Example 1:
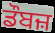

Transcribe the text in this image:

ਡੌਬਜ਼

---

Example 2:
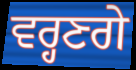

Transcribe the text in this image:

ਵਰ੍ਹਣਗੇ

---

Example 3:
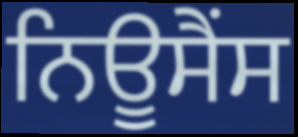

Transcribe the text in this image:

ਨਿਊਸੈਂਸ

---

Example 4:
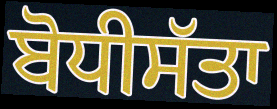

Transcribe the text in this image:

ਬੋਧੀਸੱਤਾ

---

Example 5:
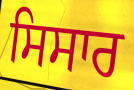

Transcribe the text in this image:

ਸਿਸਾਰ